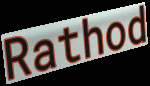
Rathod